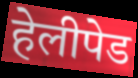
हेलीपेड